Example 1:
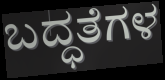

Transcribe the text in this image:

ಬದ್ಧತೆಗಳ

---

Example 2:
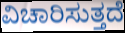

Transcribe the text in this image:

ವಿಚಾರಿಸುತ್ತದೆ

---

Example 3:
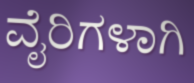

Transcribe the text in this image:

ವೈರಿಗಳಾಗಿ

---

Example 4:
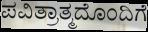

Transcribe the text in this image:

ಪವಿತ್ರಾತ್ಮದೊಂದಿಗೆ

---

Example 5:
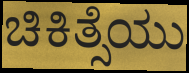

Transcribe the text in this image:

ಚಿಕಿತ್ಸೆಯು